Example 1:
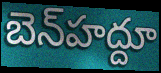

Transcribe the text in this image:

బెన్‍హద్దూ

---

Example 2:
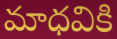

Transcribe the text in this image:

మాధవికి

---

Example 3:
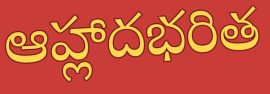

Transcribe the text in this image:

ఆహ్లాదభరిత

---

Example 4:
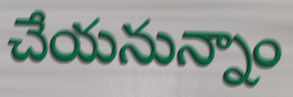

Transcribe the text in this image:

చేయనున్నాం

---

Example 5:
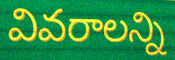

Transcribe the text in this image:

వివరాలన్ని